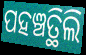
ପହଞ୍ଚତ୍ଥିଲି